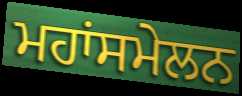
ਮਹਾਂਸਮੇਲਨ